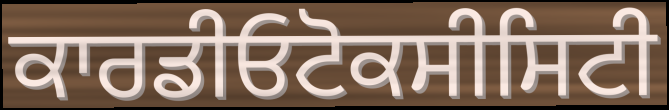
ਕਾਰਡੀਓਟੋਕਸੀਸਿਟੀ